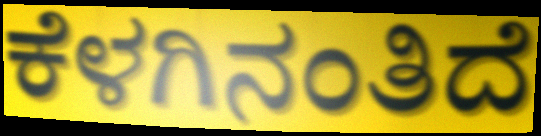
ಕೆಳಗಿನಂತಿದೆ